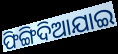
ଫିଙ୍ଗିଦିଆଯାଇ